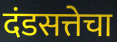
दंडसत्तेचा